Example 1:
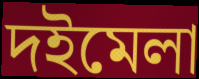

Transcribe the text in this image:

দইমেলা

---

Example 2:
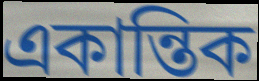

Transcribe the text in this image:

একান্তিক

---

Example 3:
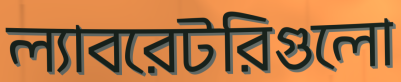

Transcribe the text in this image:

ল্যাবরেটরিগুলো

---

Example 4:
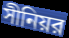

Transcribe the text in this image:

সীনিয়র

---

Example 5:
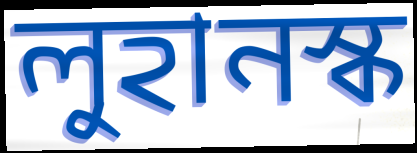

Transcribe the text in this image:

লুহানস্ক